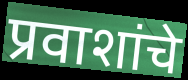
प्रवाशांचे